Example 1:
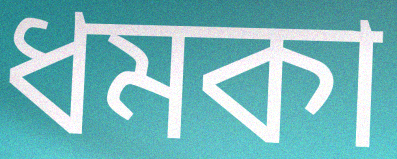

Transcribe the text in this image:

ধমকা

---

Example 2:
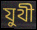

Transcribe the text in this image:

যুথী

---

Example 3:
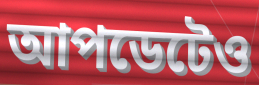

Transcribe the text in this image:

আপডেটেও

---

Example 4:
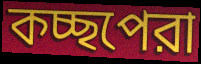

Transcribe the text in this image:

কচ্ছপেরা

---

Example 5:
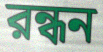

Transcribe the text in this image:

রন্ধন